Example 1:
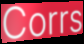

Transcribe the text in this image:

Corrs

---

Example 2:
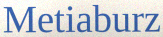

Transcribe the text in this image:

Metiaburz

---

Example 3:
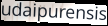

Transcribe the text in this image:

udaipurensis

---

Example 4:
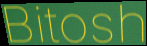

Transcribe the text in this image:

Bitosh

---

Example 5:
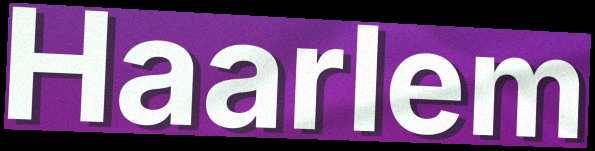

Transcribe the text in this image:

Haarlem